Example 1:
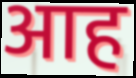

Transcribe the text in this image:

आह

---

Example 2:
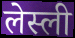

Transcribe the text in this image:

लेस्ली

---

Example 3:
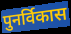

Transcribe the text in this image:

पुनर्विकास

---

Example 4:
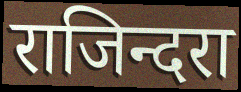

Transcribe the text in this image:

राजिन्दरा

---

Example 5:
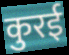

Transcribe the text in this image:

कुरई